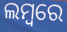
ଲମ୍ବରେ